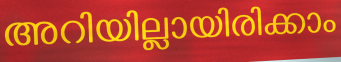
അറിയില്ലായിരിക്കാം